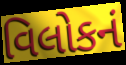
વિલોકનં